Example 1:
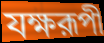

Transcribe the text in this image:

যক্ষরূপী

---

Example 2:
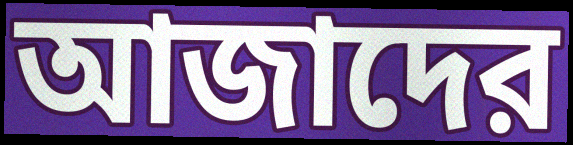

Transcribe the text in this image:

আজাদের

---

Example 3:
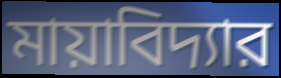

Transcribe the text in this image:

মায়াবিদ্যার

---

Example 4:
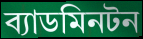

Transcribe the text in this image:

ব্যাডমিনটন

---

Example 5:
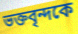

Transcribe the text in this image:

ভক্তবৃন্দকে